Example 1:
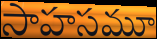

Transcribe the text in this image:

సాహసమూ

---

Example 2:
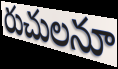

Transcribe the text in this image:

రుచులనూ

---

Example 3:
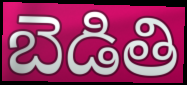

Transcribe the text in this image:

బెడితి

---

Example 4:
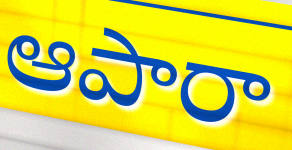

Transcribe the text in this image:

ఆపారా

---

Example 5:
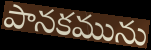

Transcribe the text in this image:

పానకమును